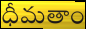
ధీమతాం